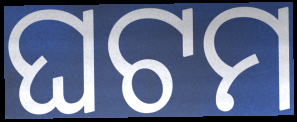
ଘଟମ